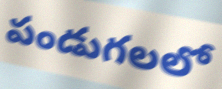
పండుగలలో